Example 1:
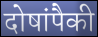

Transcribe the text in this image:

दोषांपैकी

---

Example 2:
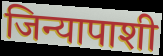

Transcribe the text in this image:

जिन्यापाशी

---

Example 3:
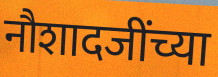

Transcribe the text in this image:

नौशादजींच्या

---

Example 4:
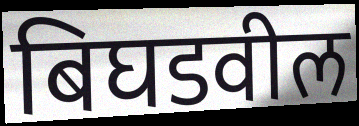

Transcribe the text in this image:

बिघडवील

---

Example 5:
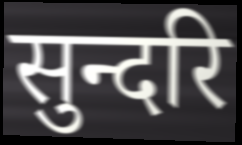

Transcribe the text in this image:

सुन्दरि